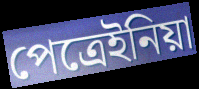
পেত্রেইনিয়া